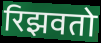
रिझवतो